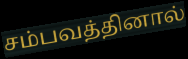
சம்பவத்தினால்